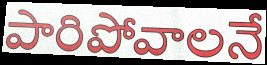
పారిపోవాలనే